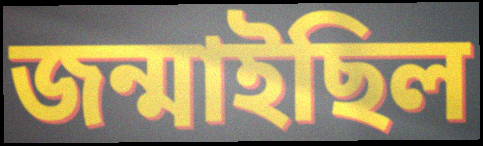
জন্মাইছিল